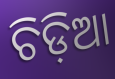
ଚିଡ଼ିଆ